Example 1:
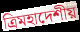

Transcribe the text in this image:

ত্রিমহাদেশীয়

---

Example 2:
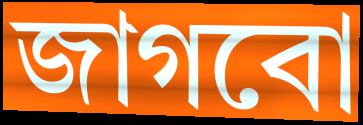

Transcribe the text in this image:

জাগবো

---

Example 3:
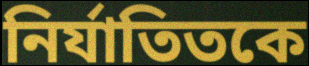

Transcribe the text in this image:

নির্যাতিতকে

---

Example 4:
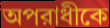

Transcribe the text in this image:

অপরাধীকে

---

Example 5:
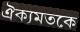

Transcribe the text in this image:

ঐক্যমতকে